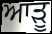
ਆੜੂ